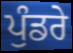
ਪੁੰਡਰੇ